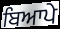
ਬਿਆਪੇ